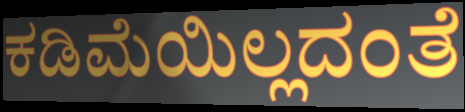
ಕಡಿಮೆಯಿಲ್ಲದಂತೆ